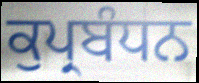
ਕੁਪ੍ਰਬੰਧਨ